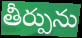
తీర్పును